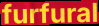
furfural